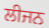
ਲੀਜਨ